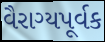
વૈરાગ્યપૂર્વક